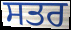
ਸਤਰ